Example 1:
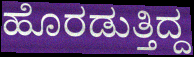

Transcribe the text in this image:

ಹೊರಡುತ್ತಿದ್ದ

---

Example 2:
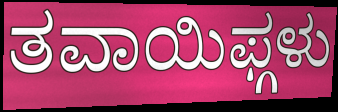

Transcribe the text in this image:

ತವಾಯಿಫ್ಗಳು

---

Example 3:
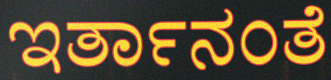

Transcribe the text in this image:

ಇರ್ತಾನಂತೆ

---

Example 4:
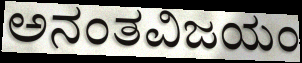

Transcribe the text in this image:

ಅನಂತವಿಜಯಂ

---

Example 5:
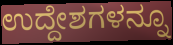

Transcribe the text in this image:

ಉದ್ದೇಶಗಳನ್ನೂ